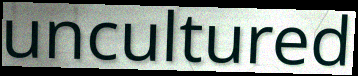
uncultured